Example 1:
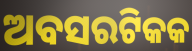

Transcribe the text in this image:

ଅବସରଟିକକ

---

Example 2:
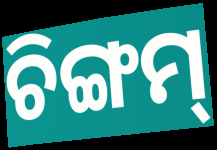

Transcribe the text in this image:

ଚିଙ୍ଗମ୍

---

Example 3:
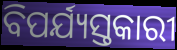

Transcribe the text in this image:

ବିପର୍ଯ୍ୟସ୍ତକାରୀ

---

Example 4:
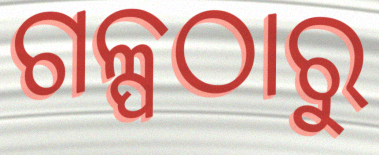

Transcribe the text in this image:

ଗଳ୍ପଠାରୁ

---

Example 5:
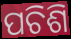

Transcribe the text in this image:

ପଚିଶି